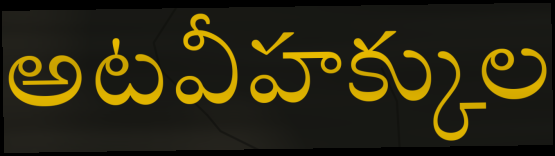
అటవీహక్కుల